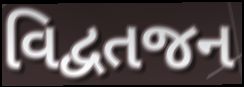
વિદ્વતજન